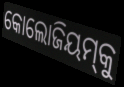
କୋଲୋଜିୟମ୍‍କୁ